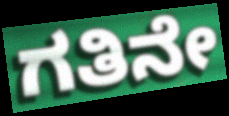
ಗತಿನೇ